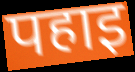
पहाइ